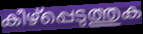
കീഴ്പ്പെടുത്തുക